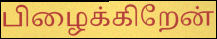
பிழைக்கிறேன்